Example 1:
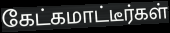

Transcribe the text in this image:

கேட்கமாட்டீர்கள்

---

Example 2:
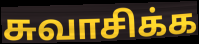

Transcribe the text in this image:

சுவாசிக்க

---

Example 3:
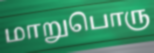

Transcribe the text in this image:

மாறுபொரு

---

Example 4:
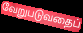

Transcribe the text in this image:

வேறுபடுவதைப்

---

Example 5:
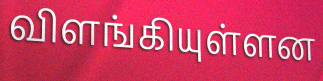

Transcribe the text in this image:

விளங்கியுள்ளன